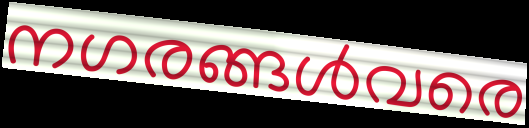
നഗരങ്ങൾവരെ